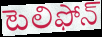
టెలిఫోన్